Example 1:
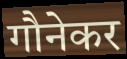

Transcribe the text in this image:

गौनेकर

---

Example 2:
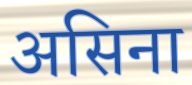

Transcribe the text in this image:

असिना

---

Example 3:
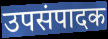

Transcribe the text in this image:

उपसंपादक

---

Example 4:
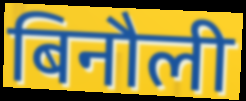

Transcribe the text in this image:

बिनौली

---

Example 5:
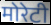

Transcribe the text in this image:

मोरेटी